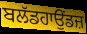
ਬਲੱਡਹਾਉਂਡਜ਼